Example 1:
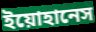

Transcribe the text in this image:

ইয়োহানেস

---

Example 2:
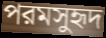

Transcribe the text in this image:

পরমসুহৃদ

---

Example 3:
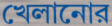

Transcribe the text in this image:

খেলানোর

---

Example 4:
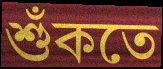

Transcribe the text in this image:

শুঁকতে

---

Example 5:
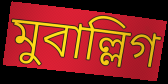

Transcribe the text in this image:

মুবাল্লিগ